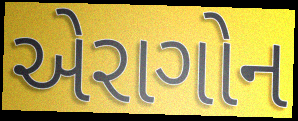
એરાગોન